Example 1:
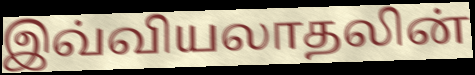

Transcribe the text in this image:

இவ்வியலாதலின்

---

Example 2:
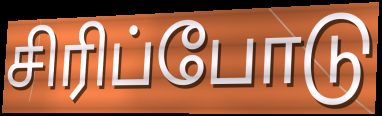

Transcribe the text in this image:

சிரிப்போடு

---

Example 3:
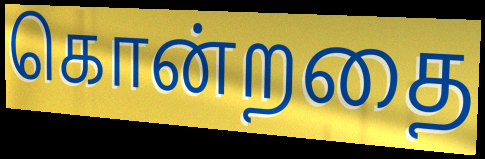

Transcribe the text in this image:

கொன்றதை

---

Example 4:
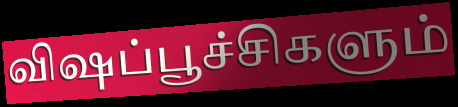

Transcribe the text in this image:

விஷப்பூச்சிகளும்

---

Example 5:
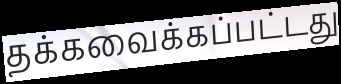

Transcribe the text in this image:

தக்கவைக்கப்பட்டது